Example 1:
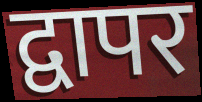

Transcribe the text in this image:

द्वापर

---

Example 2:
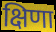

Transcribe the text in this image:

क्षिणा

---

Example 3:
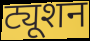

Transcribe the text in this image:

ट्यूशन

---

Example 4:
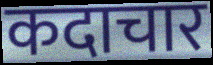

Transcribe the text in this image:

कदाचार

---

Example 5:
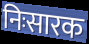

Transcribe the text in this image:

निःसारक